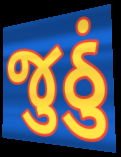
જુઠું